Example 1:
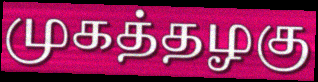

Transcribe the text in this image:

முகத்தழகு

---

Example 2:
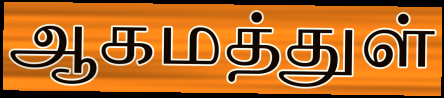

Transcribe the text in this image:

ஆகமத்துள்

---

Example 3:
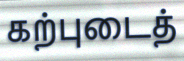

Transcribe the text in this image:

கற்புடைத்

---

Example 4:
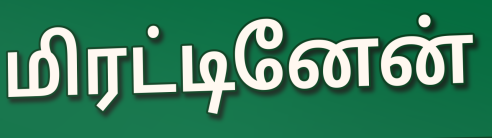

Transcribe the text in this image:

மிரட்டினேன்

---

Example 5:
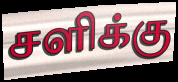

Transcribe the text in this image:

சளிக்கு